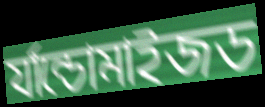
র্যান্ডোমাইজড